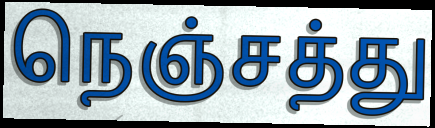
நெஞ்சத்து